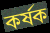
কর্ষক